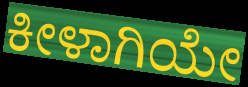
ಕೀಳಾಗಿಯೇ